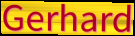
Gerhard